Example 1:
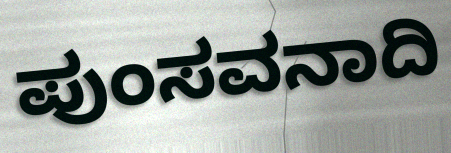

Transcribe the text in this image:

ಪುಂಸವನಾದಿ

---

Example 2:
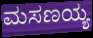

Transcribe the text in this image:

ಮಸಣಯ್ಯ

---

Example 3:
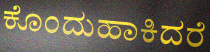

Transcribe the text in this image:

ಕೊಂದುಹಾಕಿದರೆ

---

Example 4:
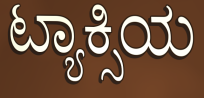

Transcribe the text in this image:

ಟ್ಯಾಕ್ಸಿಯ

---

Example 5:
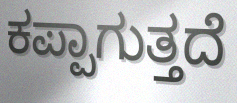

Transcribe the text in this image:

ಕಪ್ಪಾಗುತ್ತದೆ